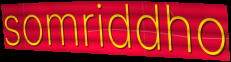
somriddho